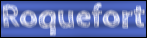
Roquefort